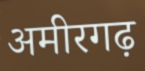
अमीरगढ़